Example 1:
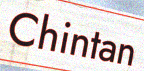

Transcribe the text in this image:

Chintan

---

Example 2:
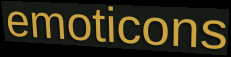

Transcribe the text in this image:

emoticons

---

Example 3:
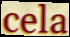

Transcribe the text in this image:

cela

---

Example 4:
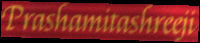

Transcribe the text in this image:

Prashamitashreeji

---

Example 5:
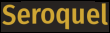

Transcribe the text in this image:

Seroquel